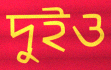
দুইও